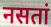
नसतां